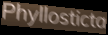
Phyllosticta